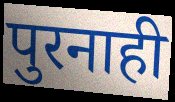
पुरनाही